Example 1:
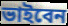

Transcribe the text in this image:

ভাইবেন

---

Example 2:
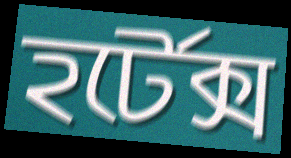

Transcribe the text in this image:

হর্টেক্স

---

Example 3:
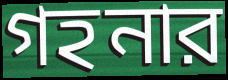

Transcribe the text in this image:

গহনার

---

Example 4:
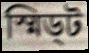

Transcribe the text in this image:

স্মিড্ট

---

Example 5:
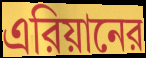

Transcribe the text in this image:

এরিয়ানের